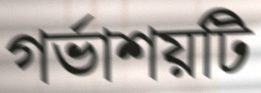
গর্ভাশয়টি